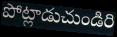
పోట్లాడుచుండిరి